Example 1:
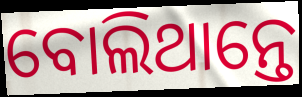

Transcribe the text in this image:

ବୋଲିଥାନ୍ତେ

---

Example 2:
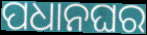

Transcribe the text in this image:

ପଧାନଘର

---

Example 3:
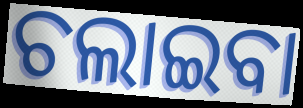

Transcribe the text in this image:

ଚଲାଇବା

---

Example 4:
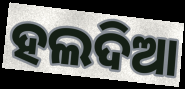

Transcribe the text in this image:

ହଲଦିଆ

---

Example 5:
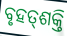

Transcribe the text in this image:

ବୃହତ୍‌ଶକ୍ତି